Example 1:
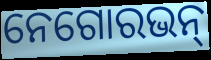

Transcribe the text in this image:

ନେଗୋରଭନ୍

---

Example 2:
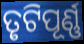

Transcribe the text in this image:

ତୃଟିପୂର୍ଣ୍ଣ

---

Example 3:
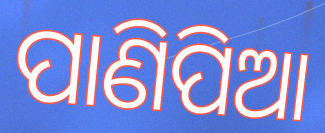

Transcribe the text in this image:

ପାଣିପିଆ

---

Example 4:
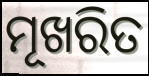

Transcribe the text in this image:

ମୂଖରିତ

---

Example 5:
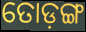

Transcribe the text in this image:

ତୋଡ଼ଙ୍ଗ